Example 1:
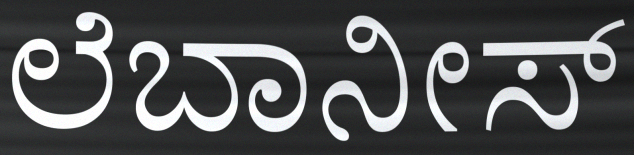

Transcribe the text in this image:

ಲೆಬಾನೀಸ್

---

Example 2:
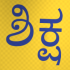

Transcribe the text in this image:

ಶಿಕ್ಷ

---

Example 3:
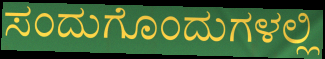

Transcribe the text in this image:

ಸಂದುಗೊಂದುಗಳಲ್ಲಿ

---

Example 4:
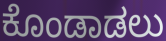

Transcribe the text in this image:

ಕೊಂಡಾಡಲು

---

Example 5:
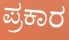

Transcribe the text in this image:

ಪ್ರಕಾರ